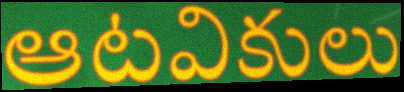
ఆటవికులు